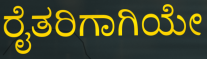
ರೈತರಿಗಾಗಿಯೇ